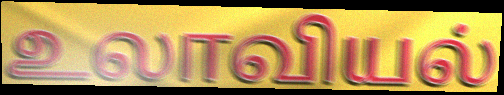
உலாவியல்